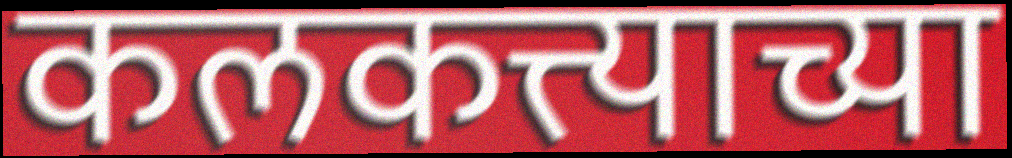
कलकत्त्याच्या